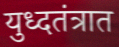
युध्दतंत्रात